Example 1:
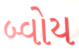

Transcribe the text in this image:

બ્વોય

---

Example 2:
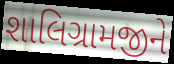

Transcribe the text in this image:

શાલિગ્રામજીને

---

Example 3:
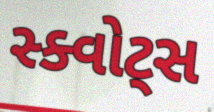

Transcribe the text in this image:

સ્ક્વોટ્સ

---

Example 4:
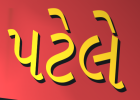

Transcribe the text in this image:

પટેલે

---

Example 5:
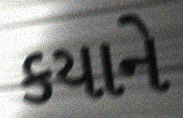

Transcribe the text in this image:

કયાને